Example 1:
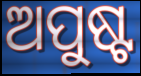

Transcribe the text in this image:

ଅପୁଷ୍ଟ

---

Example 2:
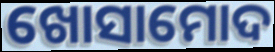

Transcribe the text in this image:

ଖୋସାମୋଦ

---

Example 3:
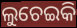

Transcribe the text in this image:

ଲୁଚେଇକି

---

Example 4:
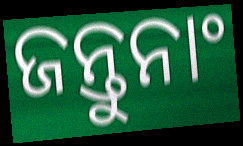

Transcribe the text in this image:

ଜନ୍ତୁନାଂ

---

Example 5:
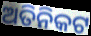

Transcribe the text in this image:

ଅତିନିକଟ